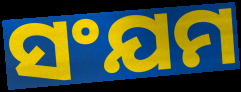
ସଂଯମ